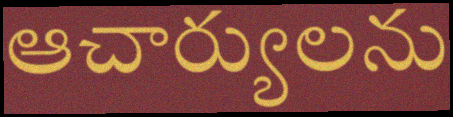
ఆచార్యులను